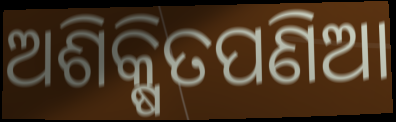
ଅଶିକ୍ଷିତପଣିଆ